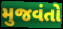
મુજવંતો